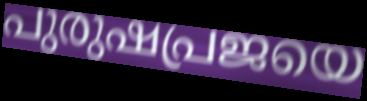
പുരുഷപ്രജയെ